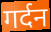
गर्दन